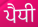
ਪੈਧੀ